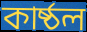
কাষ্ঠল